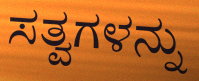
ಸತ್ವಗಳನ್ನು